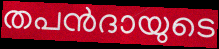
തപൻദായുടെ